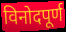
विनोदपूर्ण